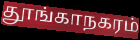
தூங்காநகரம்